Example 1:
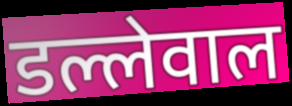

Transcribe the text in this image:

डल्लेवाल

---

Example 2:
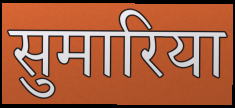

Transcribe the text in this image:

सुमारिया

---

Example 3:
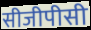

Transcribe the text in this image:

सीजीपीसी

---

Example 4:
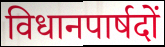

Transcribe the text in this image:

विधानपार्षदों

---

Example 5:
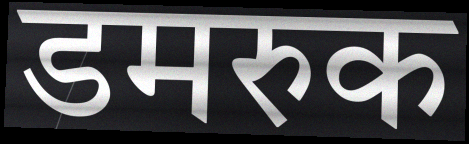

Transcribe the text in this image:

डमरुक